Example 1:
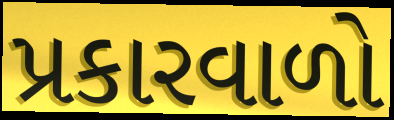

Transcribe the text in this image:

પ્રકારવાળો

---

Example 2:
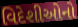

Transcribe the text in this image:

વિદેશીઓનો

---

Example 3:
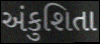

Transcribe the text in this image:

અંકુશિતા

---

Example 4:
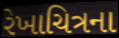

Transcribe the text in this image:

રેખાચિત્રના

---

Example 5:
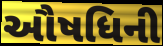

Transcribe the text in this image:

ઔષધિની